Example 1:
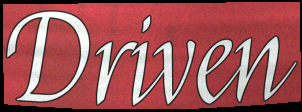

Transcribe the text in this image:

Driven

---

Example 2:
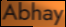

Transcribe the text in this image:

Abhay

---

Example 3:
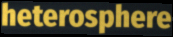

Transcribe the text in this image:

heterosphere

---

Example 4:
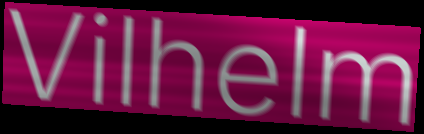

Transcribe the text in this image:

Vilhelm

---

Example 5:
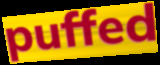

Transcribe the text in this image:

puffed